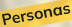
Personas